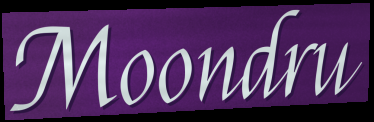
Moondru